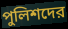
পুলিশদের